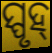
ସ୍ପୃହ୍